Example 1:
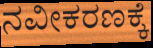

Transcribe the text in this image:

ನವೀಕರಣಕ್ಕೆ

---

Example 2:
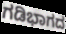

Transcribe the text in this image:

ಗಡಿಭಾಗದ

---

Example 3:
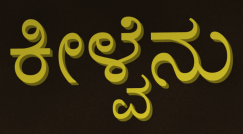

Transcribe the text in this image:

ಕೀಳ್ವೆನು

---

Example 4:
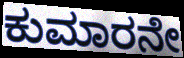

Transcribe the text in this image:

ಕುಮಾರನೇ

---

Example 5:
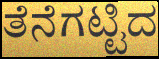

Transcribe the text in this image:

ತೆನೆಗಟ್ಟಿದ